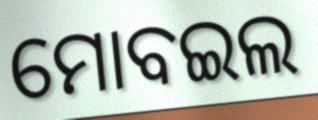
ମୋବଇଲ